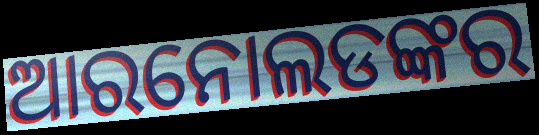
ଆରନୋଲଡଙ୍କର